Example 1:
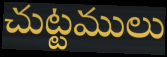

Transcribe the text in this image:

చుట్టములు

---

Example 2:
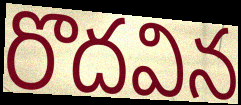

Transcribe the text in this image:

రొదవిన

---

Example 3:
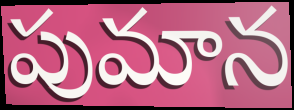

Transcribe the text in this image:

పుమాన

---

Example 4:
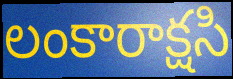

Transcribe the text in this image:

లంకారాక్షసి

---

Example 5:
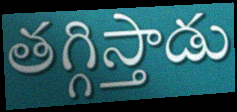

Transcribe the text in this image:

తగ్గిస్తాడు